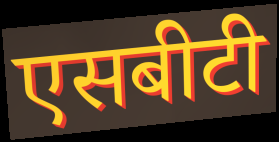
एसबीटी